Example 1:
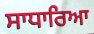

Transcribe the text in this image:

ਸਾਧਾਰਿਆ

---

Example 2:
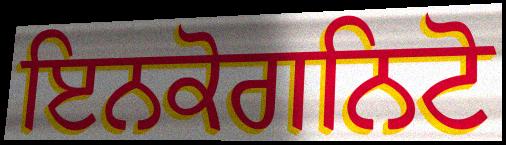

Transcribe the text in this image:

ਇਨਕੋਗਨਿਟੋ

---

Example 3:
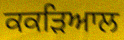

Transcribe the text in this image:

ਕਕੜਿਆਲ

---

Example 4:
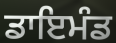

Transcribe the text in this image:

ਡਾਇਮੰਡ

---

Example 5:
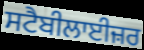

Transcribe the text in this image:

ਸਟੈਬੀਲਾਈਜ਼ਰ